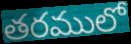
తరములో